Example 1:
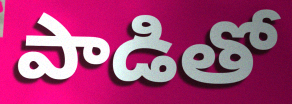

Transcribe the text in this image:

పాడితో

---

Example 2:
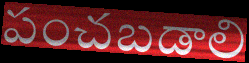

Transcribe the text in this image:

పంచబడాలి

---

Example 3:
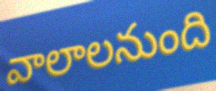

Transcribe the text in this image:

వాలాలనుంది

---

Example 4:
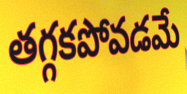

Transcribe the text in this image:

తగ్గకపోవడమే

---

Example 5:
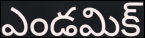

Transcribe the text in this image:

ఎండమిక్